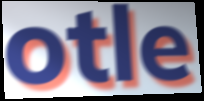
otle